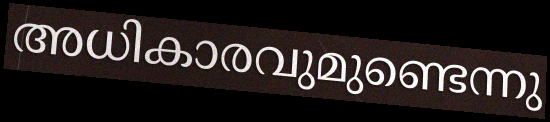
അധികാരവുമുണ്ടെന്നു